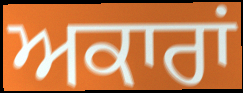
ਅਕਾਰਾਂ